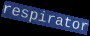
respirator